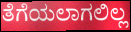
ತೆಗೆಯಲಾಗಲಿಲ್ಲ